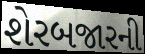
શેરબજારની